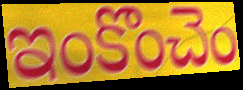
ఇంకొంచెం